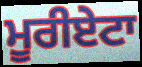
ਮੂਰੀਏਟਾ